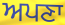
ਅਪਣਾ